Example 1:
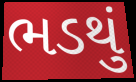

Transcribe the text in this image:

ભડથું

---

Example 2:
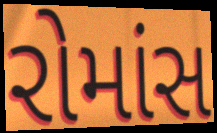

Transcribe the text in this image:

રોમાંસ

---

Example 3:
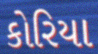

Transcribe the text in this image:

કોરિયા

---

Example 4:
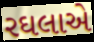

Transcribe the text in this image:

રઘલાએ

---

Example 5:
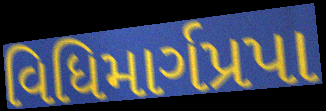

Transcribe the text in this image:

વિધિમાર્ગપ્રપા